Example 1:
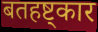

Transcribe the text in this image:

बतहष्ट्कार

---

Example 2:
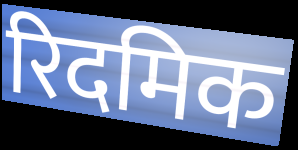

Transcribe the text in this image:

रिदमिक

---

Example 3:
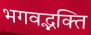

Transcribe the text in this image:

भगवद्भक्ति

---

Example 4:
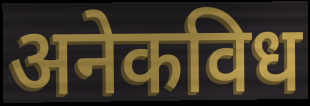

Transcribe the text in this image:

अनेकविध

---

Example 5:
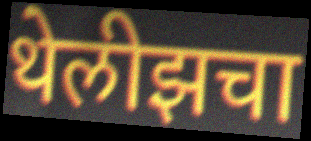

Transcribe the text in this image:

थेलीझचा